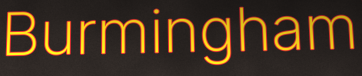
Burmingham